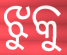
ଝୁକୁ